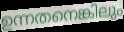
ഉന്നതനെങ്കിലും